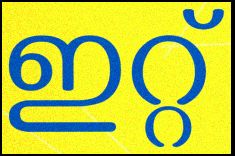
ഇറ്റ്